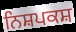
ਨਿਸ਼ਪਕਸ਼